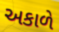
અકાળે